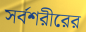
সর্বশরীরের